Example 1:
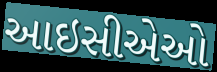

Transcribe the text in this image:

આઇસીએઓ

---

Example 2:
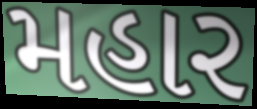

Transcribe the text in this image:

મહાર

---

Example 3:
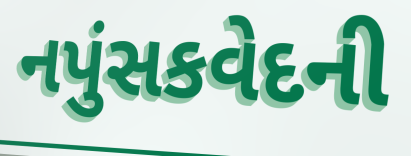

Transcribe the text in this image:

નપુંસકવેદની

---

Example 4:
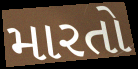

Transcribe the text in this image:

મારતો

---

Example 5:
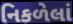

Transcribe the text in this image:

નિકળેલાં